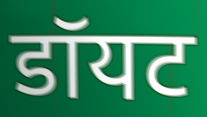
डॉयट